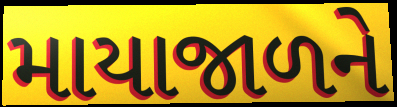
માયાજાળને